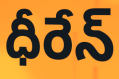
ధీరేన్